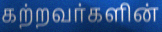
கற்றவர்களின்